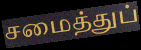
சமைத்துப்